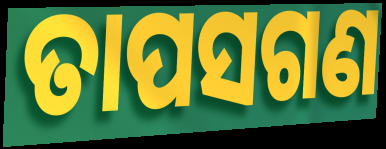
ତାପସଗଣ